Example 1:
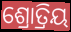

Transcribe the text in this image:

ଶ୍ରୋତ୍ରିୟ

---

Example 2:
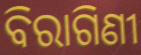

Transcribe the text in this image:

ବିରାଗିଣୀ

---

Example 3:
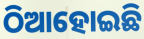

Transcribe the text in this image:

ଠିଆହୋଇଛି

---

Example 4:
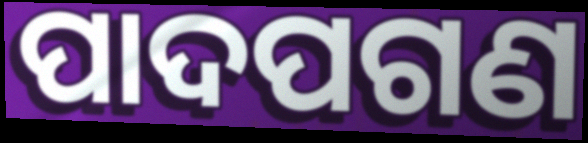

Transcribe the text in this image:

ପାଦପଗଣ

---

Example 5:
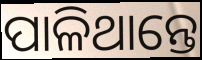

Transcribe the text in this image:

ପାଳିଥାନ୍ତେ